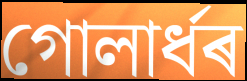
গোলাৰ্ধৰ